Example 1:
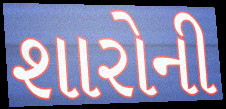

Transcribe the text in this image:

શારોની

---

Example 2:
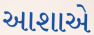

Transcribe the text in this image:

આશાએ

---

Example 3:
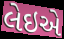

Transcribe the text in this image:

લેઇએ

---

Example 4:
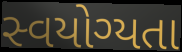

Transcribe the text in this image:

સ્વયોગ્યતા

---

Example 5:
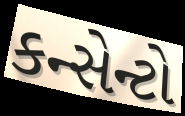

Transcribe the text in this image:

કન્સેન્ટો